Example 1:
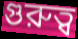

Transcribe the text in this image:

গুরুত্ব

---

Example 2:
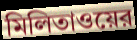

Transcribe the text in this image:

মিলিতাওয়ের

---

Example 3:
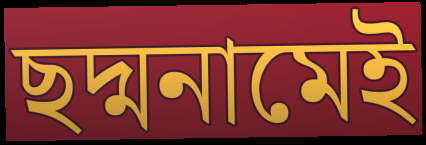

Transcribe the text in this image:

ছদ্মনামেই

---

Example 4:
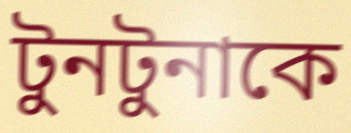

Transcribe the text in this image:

টুনটুনাকে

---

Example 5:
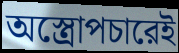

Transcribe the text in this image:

অস্ত্রোপচারেই